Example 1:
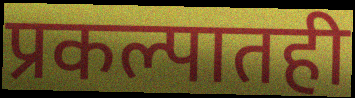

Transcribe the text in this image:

प्रकल्पातही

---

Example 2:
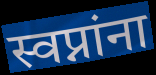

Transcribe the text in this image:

स्वप्नांना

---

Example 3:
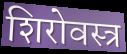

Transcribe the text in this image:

शिरोवस्त्र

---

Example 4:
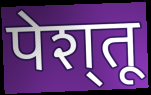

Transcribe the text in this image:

पेश्तू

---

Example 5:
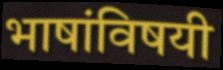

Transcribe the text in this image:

भाषांविषयी